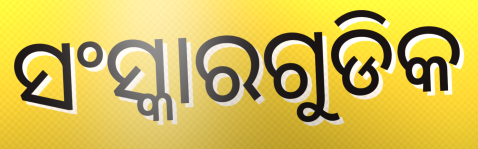
ସଂସ୍କାରଗୁଡିକ